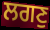
ਲਗਣੁ